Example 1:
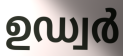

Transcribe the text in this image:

ഉഡ്വർ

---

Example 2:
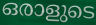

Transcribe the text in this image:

ഒരാളുടെ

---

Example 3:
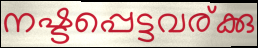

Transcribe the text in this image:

നഷ്ടപ്പെട്ടവര്ക്കു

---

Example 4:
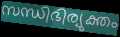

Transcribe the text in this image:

സന്ധിഭിര്യുക്തം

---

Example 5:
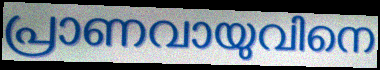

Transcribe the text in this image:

പ്രാണവായുവിനെ